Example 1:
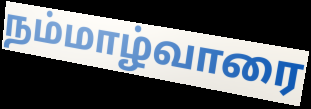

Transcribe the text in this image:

நம்மாழ்வாரை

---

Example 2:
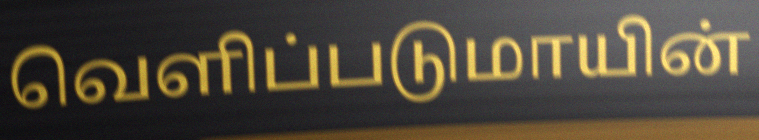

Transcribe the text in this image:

வெளிப்படுமாயின்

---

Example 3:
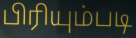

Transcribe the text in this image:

பிரியும்படி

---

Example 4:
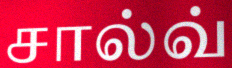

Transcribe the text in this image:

சால்வ்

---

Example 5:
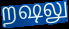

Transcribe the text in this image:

றஷலு